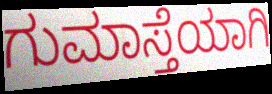
ಗುಮಾಸ್ತೆಯಾಗಿ